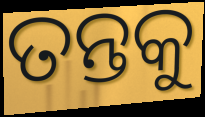
ତନ୍ତକୁ